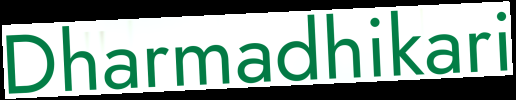
Dharmadhikari